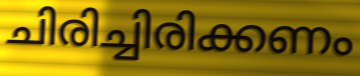
ചിരിച്ചിരിക്കണം